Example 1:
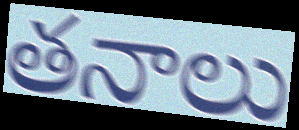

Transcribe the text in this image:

తనాలు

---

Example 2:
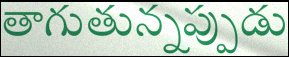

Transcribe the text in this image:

తాగుతున్నప్పుడు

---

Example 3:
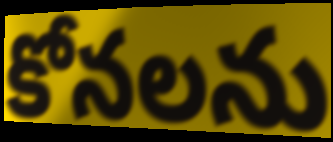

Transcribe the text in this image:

కోనలను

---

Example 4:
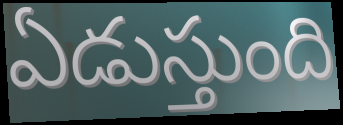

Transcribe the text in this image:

ఏడుస్తుంది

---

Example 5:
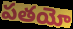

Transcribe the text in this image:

పతయో